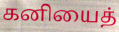
கனியைத்